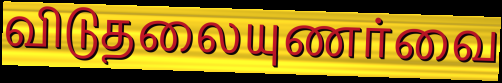
விடுதலையுணர்வை